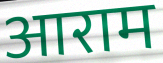
आराम